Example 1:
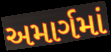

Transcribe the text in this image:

અમાર્ગમાં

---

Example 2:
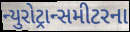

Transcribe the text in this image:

ન્યુરોટ્રાન્સમીટરના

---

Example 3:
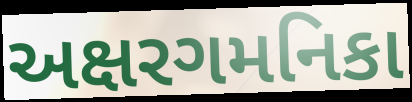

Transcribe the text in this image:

અક્ષરગમનિકા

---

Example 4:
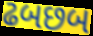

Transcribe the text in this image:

ઢબછબ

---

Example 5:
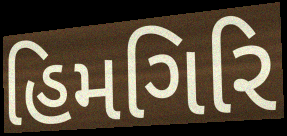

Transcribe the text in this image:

હિમગિરિ